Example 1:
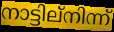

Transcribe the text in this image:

നാട്ടില്നിന്ന്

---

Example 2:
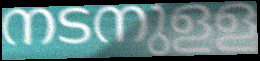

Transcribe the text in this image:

നടനുളള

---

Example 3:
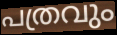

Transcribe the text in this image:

പത്രവും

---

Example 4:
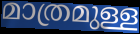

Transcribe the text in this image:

മാത്രമുള്ള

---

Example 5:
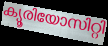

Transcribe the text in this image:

ക്യൂരിയോസിറ്റി